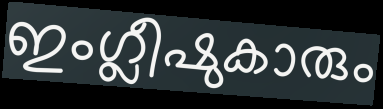
ഇംഗ്ലീഷുകാരും